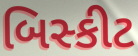
બિસ્કીટ